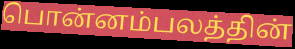
பொன்னம்பலத்தின்